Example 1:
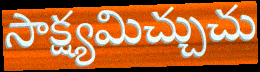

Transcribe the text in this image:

సాక్ష్యమిచ్చుచు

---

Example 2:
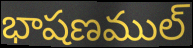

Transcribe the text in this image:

భాషణముల్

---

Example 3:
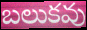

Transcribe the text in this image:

బలుకవు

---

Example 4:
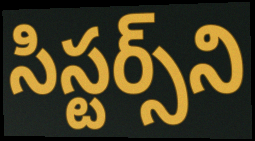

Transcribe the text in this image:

సిస్టర్స్‌ని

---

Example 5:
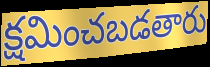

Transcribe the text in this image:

క్షమించబడతారు